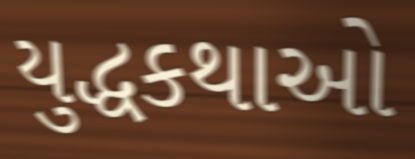
યુદ્ધકથાઓ